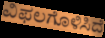
ವಿಫಲಗೊಳಿಸಿದೆ